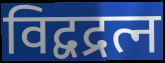
विद्वद्रत्न